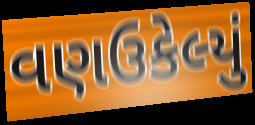
વણઉકેલ્યું